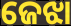
ଜେଝା